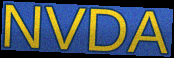
NVDA